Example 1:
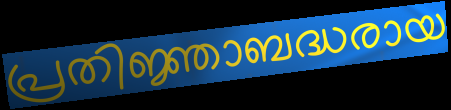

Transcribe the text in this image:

പ്രതിജ്ഞാബദ്ധരായ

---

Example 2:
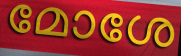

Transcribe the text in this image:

മോശേ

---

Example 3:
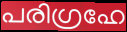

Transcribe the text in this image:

പരിഗ്രഹേ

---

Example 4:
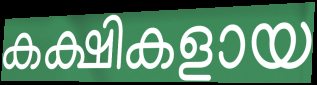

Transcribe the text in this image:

കക്ഷികളായ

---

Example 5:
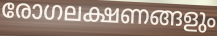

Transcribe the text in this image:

രോഗലക്ഷണങ്ങളും